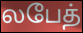
லபேத்